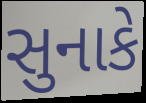
સુનાકે